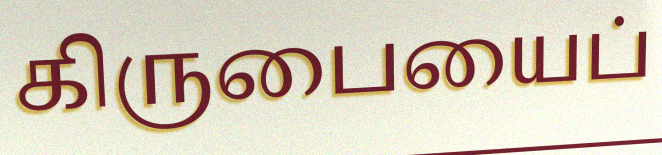
கிருபையைப்